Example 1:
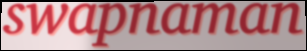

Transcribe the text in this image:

swapnaman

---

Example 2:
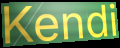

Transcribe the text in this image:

Kendi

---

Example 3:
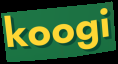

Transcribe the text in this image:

koogi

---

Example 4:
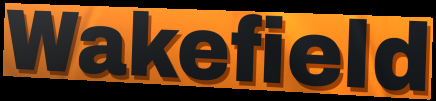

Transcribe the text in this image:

Wakefield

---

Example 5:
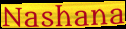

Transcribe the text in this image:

Nashana